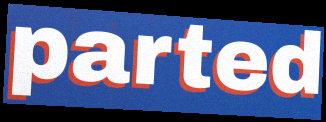
parted